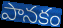
పానకం